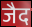
जैद